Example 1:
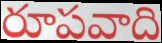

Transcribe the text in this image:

రూపవాది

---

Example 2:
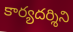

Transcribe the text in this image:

కార్యదర్శిని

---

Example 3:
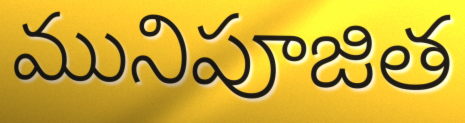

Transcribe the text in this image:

మునిపూజిత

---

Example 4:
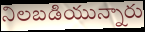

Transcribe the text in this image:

నిలబడియున్నారు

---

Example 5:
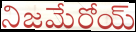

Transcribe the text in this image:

నిజమేరోయ్